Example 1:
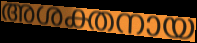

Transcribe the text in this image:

അശക്തനായ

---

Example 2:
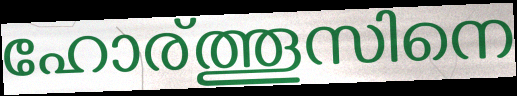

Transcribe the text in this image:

ഹോര്ത്തൂസിനെ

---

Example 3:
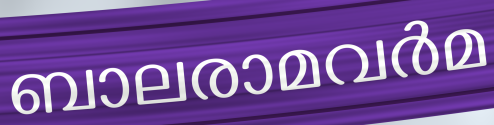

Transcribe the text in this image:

ബാലരാമവർമ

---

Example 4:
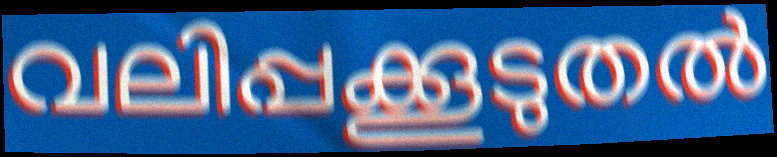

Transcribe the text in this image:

വലിപ്പക്കൂടുതൽ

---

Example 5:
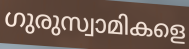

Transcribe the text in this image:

ഗുരുസ്വാമികളെ